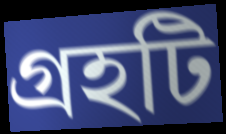
গ্রহটি